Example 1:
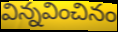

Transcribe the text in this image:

విన్నవించినం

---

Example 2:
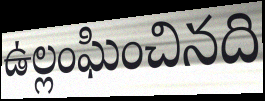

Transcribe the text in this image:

ఉల్లంఘించినది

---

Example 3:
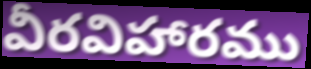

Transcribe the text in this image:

వీరవిహారము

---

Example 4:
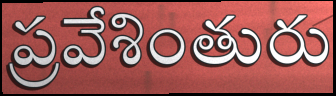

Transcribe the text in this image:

ప్రవేశింతురు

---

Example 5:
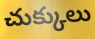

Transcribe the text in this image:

చుక్కులు